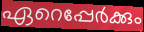
ഏറെപ്പേർക്കും